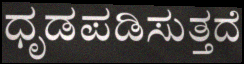
ಧೃಡಪಡಿಸುತ್ತದೆ